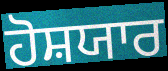
ਹੋਸ਼ਯਾਰ